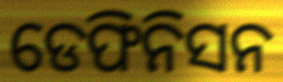
ଡେଫିନିସନ